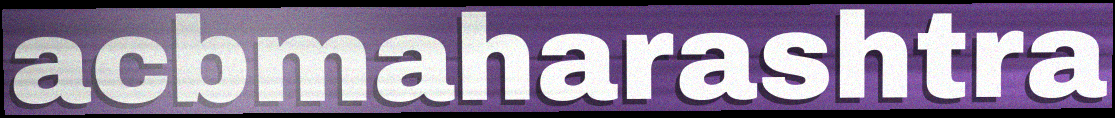
acbmaharashtra